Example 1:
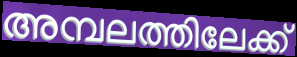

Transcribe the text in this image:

അമ്പലത്തിലേക്ക്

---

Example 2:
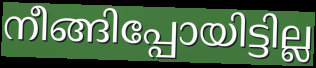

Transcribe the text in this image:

നീങ്ങിപ്പോയിട്ടില്ല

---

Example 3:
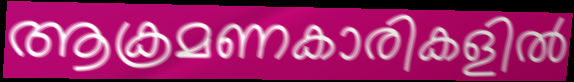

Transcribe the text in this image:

ആക്രമണകാരികളിൽ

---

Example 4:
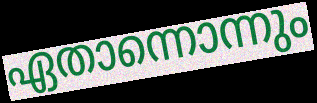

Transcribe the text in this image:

ഏതാന്നൊന്നും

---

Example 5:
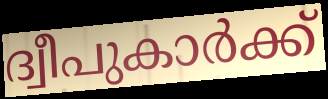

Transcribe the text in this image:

ദ്വീപുകാർക്ക്